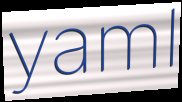
yaml